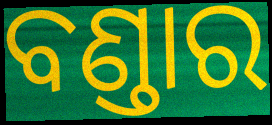
ବଣ୍ଡାର